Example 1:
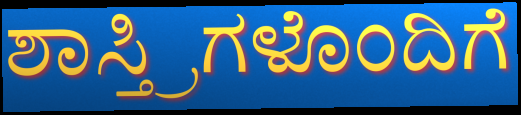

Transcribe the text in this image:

ಶಾಸ್ತ್ರಿಗಳೊಂದಿಗೆ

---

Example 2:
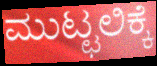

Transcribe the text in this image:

ಮುಟ್ಟಲಿಕ್ಕೆ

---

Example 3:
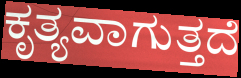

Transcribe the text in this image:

ಕೃತ್ಯವಾಗುತ್ತದೆ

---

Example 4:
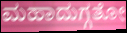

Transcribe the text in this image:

ಮಹಾದುಗ್ಗತೋ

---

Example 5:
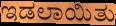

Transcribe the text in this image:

ಇಡಲಾಯಿತು